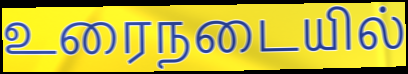
உரைநடையில்